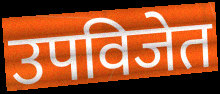
उपविजेत